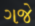
ગજે